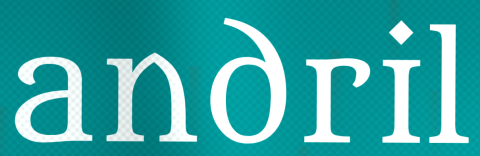
andril